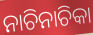
ନାଚିନାଚିକା